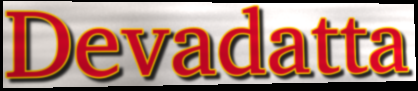
Devadatta